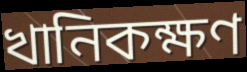
খানিকক্ষণ